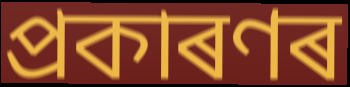
প্ৰকাৰণৰ